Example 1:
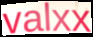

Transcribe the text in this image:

valxx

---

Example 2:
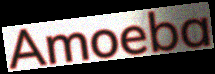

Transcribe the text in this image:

Amoeba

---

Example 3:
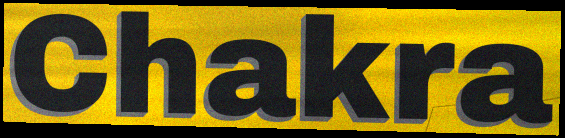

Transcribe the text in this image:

Chakra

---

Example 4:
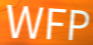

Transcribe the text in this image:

WFP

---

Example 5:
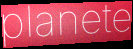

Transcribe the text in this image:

planete